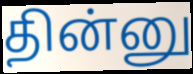
தின்னு